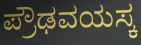
ಪ್ರೌಢವಯಸ್ಕ